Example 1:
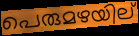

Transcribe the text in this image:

പെരുമഴയില്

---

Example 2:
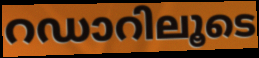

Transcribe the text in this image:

റഡാറിലൂടെ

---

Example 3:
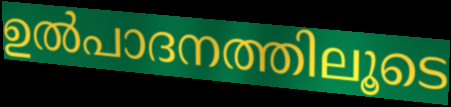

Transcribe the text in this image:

ഉൽപാദനത്തിലൂടെ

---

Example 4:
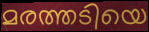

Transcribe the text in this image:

മരത്തടിയെ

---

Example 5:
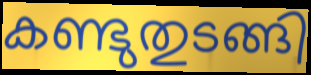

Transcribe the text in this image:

കണ്ടുതുടങ്ങി